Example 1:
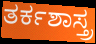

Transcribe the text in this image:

ತರ್ಕಶಾಸ್ತ್ರ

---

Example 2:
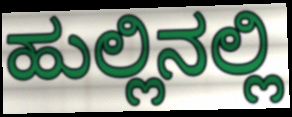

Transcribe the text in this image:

ಹುಲ್ಲಿನಲ್ಲಿ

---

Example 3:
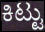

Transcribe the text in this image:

ಕಿಟ್ಟು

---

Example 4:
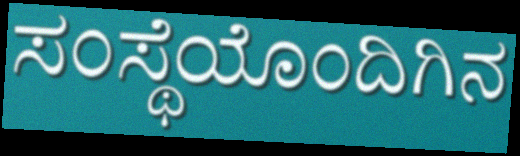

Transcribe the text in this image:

ಸಂಸ್ಥೆಯೊಂದಿಗಿನ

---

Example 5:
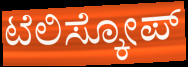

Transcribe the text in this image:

ಟೆಲಿಸ್ಕೋಪ್